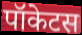
पॉकेटस